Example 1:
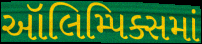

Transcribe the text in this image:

ઑલિમ્પિક્સમાં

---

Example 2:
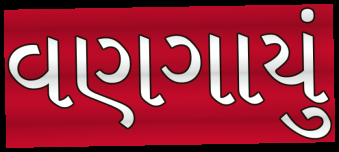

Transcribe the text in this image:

વણગાયું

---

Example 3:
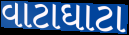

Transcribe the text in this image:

વાટાઘાટા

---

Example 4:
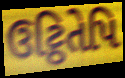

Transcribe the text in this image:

ઉટ્ઠિતેપિ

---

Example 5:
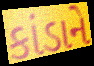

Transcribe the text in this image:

કાંડાને